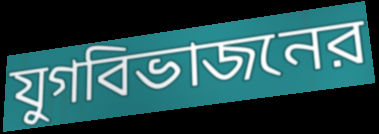
যুগবিভাজনের